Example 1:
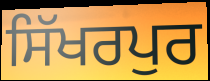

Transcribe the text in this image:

ਸਿੱਖਰਪੁਰ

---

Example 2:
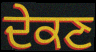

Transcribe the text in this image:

ਦੇਕਣ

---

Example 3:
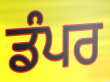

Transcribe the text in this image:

ਡੰਪਰ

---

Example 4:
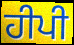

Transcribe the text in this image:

ਹੀਪੀ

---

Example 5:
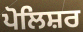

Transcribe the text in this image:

ਪੋਲਿਸ਼ਰ